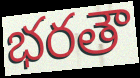
భరతౌ